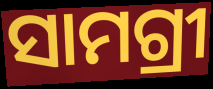
ସାମଗ୍ରୀ